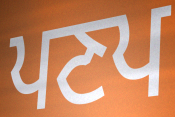
ਪਣਪ